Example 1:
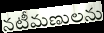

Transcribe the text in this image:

నటీమణులను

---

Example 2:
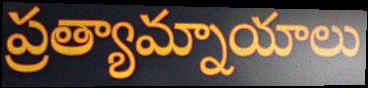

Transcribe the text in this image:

ప్రత్యామ్నాయాలు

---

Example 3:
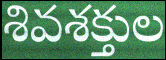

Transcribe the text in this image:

శివశక్తుల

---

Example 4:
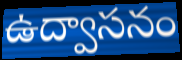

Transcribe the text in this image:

ఉద్వాసనం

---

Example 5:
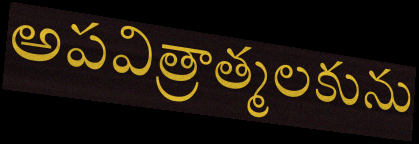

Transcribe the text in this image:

అపవిత్రాత్మలకును